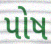
પોષ